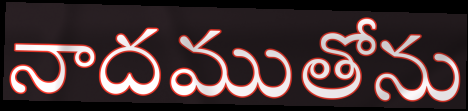
నాదముతోను